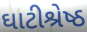
ઘાટીશ્રેષ્ઠ